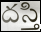
దస్తి